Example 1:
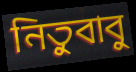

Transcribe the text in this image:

নিতুবাবু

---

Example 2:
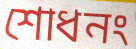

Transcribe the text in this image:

শোধনং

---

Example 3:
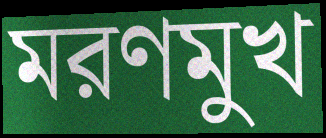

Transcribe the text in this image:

মরণমুখ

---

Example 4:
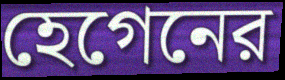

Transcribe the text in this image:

হেগেনের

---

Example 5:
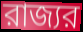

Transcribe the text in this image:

রাজ্যর